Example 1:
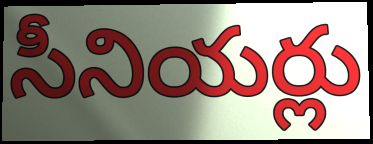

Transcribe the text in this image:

సీనియర్లు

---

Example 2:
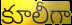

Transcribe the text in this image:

కూలీగా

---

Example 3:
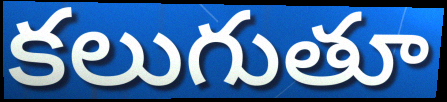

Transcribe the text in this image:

కలుగుతూ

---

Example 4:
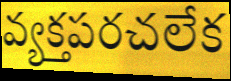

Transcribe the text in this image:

వ్యక్తపరచలేక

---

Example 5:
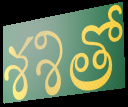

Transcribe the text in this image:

శశితో